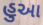
હુઆ